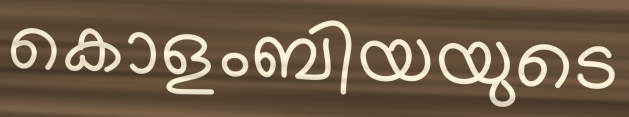
കൊളംബിയയുടെ